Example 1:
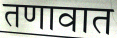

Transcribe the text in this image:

तणावात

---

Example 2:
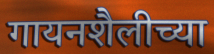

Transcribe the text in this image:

गायनशैलीच्या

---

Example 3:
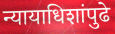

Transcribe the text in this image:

न्यायाधिशांपुढे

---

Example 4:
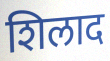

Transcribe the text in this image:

शिलाद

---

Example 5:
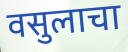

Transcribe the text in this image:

वसुलाचा